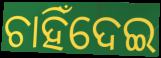
ଚାହିଁଦେଇ